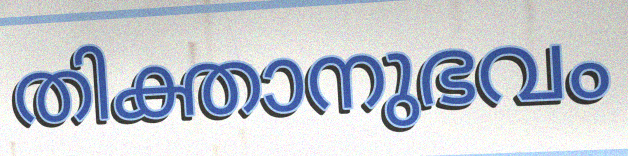
തിക്താനുഭവം